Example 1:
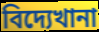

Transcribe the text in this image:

বিদ্যেখানা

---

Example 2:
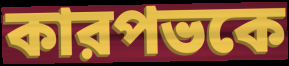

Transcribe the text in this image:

কারপভকে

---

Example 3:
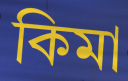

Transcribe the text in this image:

কিমা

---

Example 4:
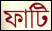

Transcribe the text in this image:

ফাটি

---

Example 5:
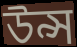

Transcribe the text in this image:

উন্স